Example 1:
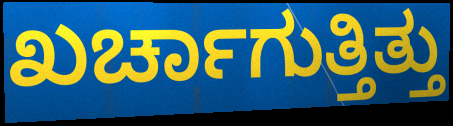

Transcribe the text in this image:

ಖರ್ಚಾಗುತ್ತಿತ್ತು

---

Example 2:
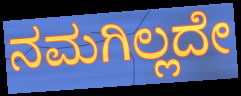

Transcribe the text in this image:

ನಮಗಿಲ್ಲದೇ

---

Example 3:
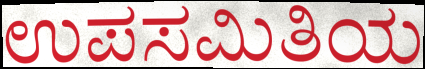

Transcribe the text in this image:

ಉಪಸಮಿತಿಯ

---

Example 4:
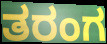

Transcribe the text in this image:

ತರಂಗ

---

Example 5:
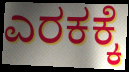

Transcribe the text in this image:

ಎರಕಕ್ಕೆ